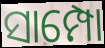
ସାମ୍ପୋ